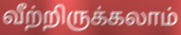
வீற்றிருக்கலாம்